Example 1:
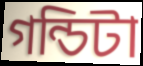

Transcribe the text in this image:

গন্ডিটা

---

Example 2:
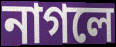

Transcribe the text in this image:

নাগলে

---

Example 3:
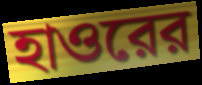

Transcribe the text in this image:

হাওরের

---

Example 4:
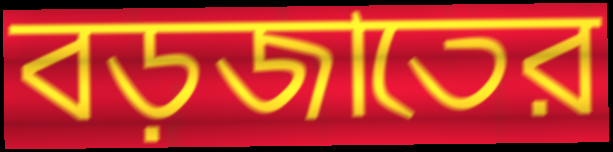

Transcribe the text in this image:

বড়জাতের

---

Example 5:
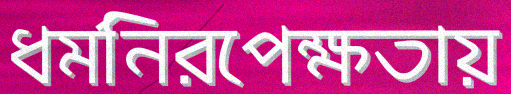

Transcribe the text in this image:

ধর্মনিরপেক্ষতায়